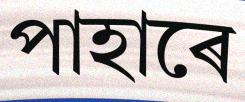
পাহাৰে